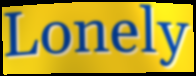
Lonely